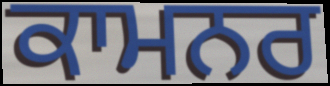
ਕਾਮਨਰ